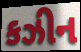
કઝીન